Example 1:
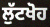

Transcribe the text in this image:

ਲੁੱਟਖੋਹ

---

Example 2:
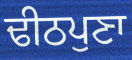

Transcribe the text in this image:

ਢੀਠਪੁਣਾ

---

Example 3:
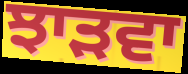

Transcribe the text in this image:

ਝਾੜਵਾ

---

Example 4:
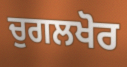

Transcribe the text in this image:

ਚੁਗਲਖੋਰ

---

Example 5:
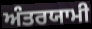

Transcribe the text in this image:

ਅੰਤਰਯਾਮੀ